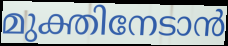
മുക്തിനേടാൻ